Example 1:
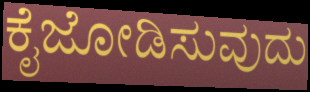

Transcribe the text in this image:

ಕೈಜೋಡಿಸುವುದು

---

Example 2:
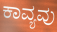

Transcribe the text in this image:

ಕಾವ್ಯವು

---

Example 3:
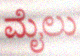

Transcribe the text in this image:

ಮೈಲು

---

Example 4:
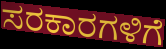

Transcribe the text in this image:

ಸರಕಾರಗಳಿಗೆ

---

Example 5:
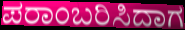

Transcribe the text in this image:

ಪರಾಂಬರಿಸಿದಾಗ